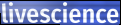
livescience